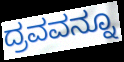
ದ್ರವವನ್ನೂ